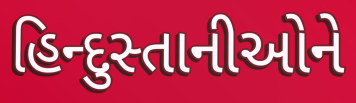
હિન્દુસ્તાનીઓને